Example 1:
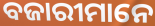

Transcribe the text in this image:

ବଜାରୀମାନେ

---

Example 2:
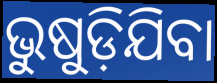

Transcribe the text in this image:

ଭୁଷୁଡ଼ିଯିବା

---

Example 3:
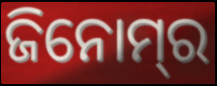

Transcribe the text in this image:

ଜିନୋମ୍‌ର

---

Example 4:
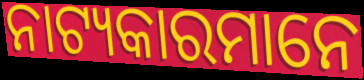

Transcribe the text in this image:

ନାଟ୍ୟକାରମାନେ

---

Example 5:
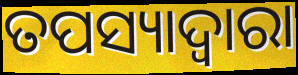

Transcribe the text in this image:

ତପସ୍ୟାଦ୍ୱାରା